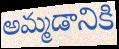
అమ్మడానికి